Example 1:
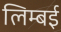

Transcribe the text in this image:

लिम्बई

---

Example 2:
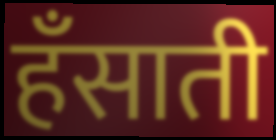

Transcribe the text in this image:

हँसाती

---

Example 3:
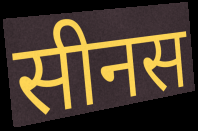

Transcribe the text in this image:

सीनस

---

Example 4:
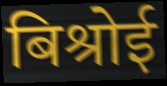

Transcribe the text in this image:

बिश्रोई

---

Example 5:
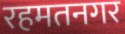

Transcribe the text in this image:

रहमतनगर